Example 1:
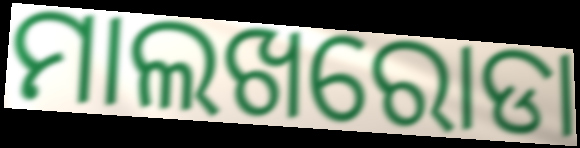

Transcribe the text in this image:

ମାଲଖରୋଡା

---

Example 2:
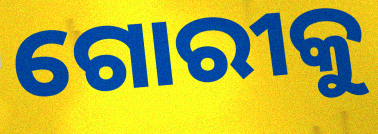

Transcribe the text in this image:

ଗୋରୀକୁ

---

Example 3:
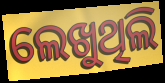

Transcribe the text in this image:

ଲେଖୁଥିଲି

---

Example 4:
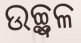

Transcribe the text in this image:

ଉଚ୍ଛ୍ଵଳ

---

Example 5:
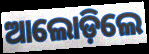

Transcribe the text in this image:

ଆଲୋଡ଼ିଲେ